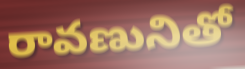
రావణునితో